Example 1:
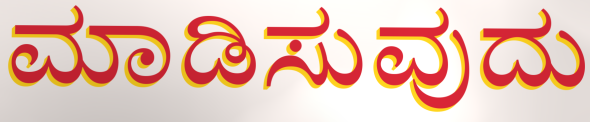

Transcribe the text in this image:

ಮಾಡಿಸುವುದು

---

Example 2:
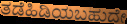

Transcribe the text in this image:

ತಡೆಹಿಡಿಯಬಹುದೇ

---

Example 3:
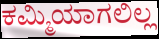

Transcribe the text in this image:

ಕಮ್ಮಿಯಾಗಲಿಲ್ಲ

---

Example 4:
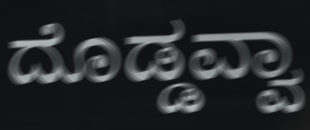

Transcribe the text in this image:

ದೊಡ್ಡವ್ವಾ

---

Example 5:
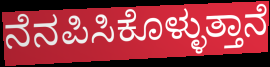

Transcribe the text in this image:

ನೆನಪಿಸಿಕೊಳ್ಳುತ್ತಾನೆ